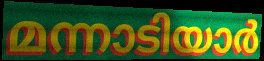
മന്നാടിയാർ